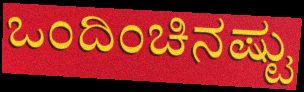
ಒಂದಿಂಚಿನಷ್ಟು